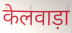
केलवाड़ा